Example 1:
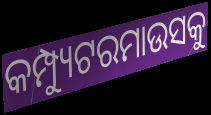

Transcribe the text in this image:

କମ୍ପ୍ୟୁଟରମାଉସକୁ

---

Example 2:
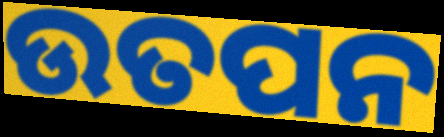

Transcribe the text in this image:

ଉତପନ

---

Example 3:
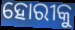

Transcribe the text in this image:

ହୋରୀକୁ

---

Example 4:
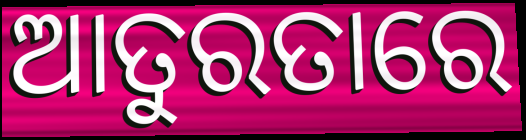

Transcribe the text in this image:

ଆତୁରତାରେ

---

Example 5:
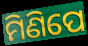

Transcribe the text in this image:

ମିଣିପେ